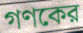
গণকের